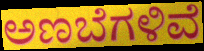
ಅಣಬೆಗಳಿವೆ